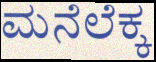
ಮನೆಲೆಕ್ಕ